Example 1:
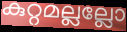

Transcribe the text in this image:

കുറ്റമല്ലല്ലോ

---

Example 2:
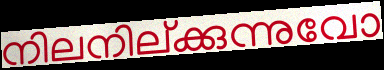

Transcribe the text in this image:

നിലനില്ക്കുന്നുവോ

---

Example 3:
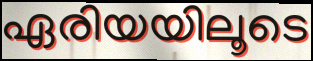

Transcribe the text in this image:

ഏരിയയിലൂടെ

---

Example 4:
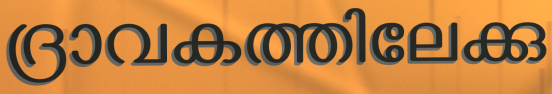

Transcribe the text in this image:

ദ്രാവകത്തിലേക്കു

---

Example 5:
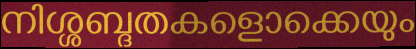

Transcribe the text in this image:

നിശ്ശബ്ദതകളൊക്കെയും